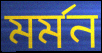
মর্মন